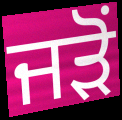
ਜਡ਼ੋਂ